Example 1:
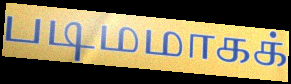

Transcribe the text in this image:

படிமமாகக்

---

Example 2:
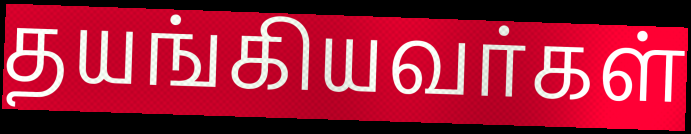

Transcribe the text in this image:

தயங்கியவர்கள்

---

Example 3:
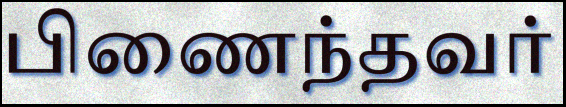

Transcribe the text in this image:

பிணைந்தவர்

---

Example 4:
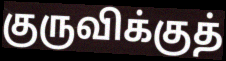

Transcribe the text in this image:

குருவிக்குத்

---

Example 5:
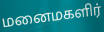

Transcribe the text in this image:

மனைமகளிர்